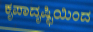
ಕೃಪಾದೃಷ್ಟಿಯಿಂದ